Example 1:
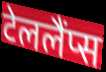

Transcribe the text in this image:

टेललैंप्स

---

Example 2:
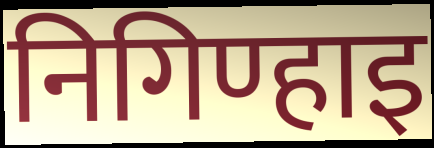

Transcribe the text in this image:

निगिण्हाइ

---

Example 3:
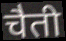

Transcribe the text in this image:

चैती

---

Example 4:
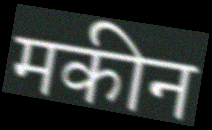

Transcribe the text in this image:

मकीन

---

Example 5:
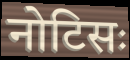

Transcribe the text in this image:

नोटिसः